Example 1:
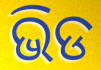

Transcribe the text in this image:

ଭିଡ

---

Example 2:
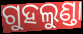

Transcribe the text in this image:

ଗୁହଲୁଣ୍ଡା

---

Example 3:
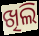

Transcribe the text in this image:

ଖିଲି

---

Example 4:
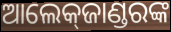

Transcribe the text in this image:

ଆଲେକ୍‌ଜାଣ୍ଡରଙ୍କ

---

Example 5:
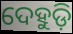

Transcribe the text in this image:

ଦେହୁଡ଼ି